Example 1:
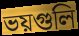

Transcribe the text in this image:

ভয়গুলি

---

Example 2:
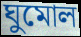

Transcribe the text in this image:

ঘুমোল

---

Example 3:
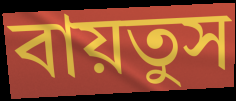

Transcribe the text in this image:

বায়তুস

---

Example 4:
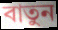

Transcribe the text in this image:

বাতুন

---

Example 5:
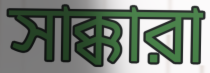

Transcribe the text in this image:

সাক্কারা